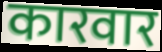
कारवार